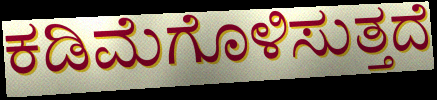
ಕಡಿಮೆಗೊಳಿಸುತ್ತದೆ